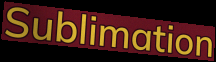
Sublimation